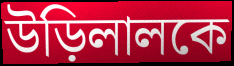
উড়িলালকে